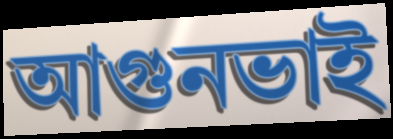
আগুনভাই